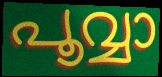
പൂവ്വാ